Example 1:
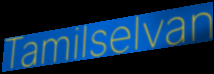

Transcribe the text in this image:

Tamilselvan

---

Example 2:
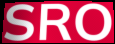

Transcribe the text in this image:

SRO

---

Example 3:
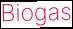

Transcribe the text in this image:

Biogas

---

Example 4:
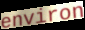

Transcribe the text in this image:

environ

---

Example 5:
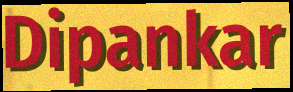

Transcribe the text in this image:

Dipankar